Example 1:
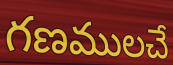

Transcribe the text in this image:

గణములచే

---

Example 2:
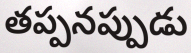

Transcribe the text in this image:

తప్పనప్పుడు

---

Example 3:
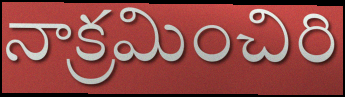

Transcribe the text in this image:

నాక్రమించిరి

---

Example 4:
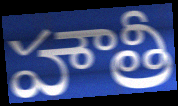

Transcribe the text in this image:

హౌతీ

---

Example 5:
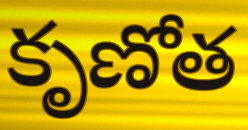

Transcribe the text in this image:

కృణోత